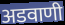
अडवाणी